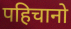
पहिचानो